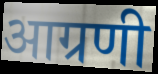
आग्रणी